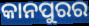
କାନପୁରର